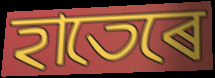
হাতেৰে